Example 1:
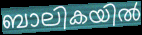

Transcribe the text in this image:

ബാലികയിൽ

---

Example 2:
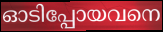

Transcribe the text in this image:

ഓടിപ്പോയവനെ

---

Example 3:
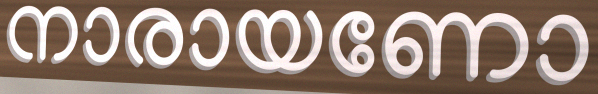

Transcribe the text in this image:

നാരായണോ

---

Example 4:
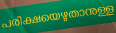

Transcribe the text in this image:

പരീക്ഷയെഴുതാനുള്ള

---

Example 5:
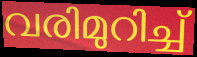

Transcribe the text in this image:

വരിമുറിച്ച്